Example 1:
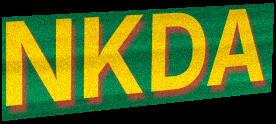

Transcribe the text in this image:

NKDA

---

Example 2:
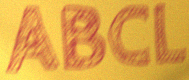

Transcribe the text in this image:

ABCL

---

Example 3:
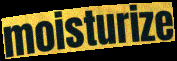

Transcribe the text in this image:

moisturize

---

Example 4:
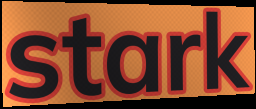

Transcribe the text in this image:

stark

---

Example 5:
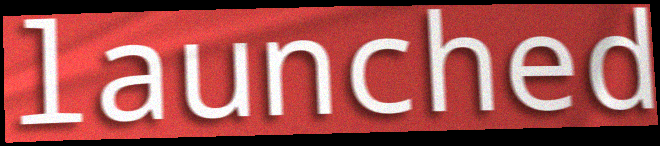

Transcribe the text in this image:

launched